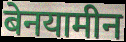
बेनयामीन